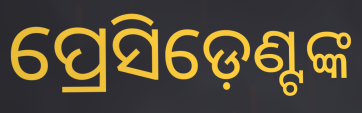
ପ୍ରେସିଡ଼େଣ୍ଟଙ୍କ